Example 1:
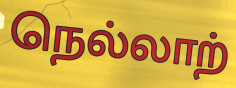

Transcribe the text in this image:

நெல்லாற்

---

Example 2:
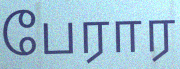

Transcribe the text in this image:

பேரார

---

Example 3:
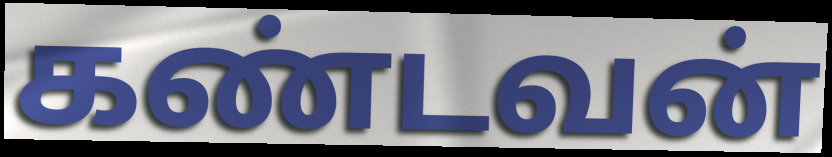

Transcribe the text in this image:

கண்டவன்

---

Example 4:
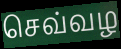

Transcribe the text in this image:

செவ்வழ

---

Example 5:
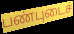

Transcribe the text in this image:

பண்புடைச்